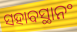
ସହାବସ୍ଥାନଂ